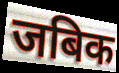
जबिक